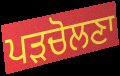
ਪੜਚੋਲਣਾ